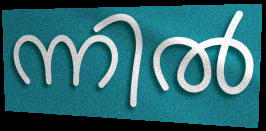
ന്നിൽ